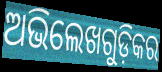
ଅଭିଲେଖଗୁଡ଼ିକର